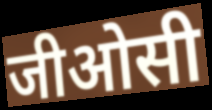
जीओसी